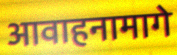
आवाहनामागे